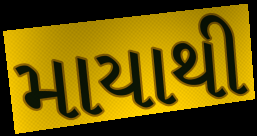
માયાથી